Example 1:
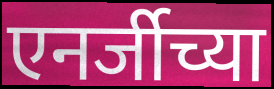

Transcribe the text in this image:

एनर्जीच्या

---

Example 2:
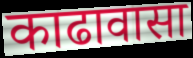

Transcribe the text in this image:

काढावासा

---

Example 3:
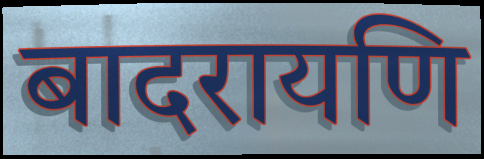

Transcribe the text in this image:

बादरायणि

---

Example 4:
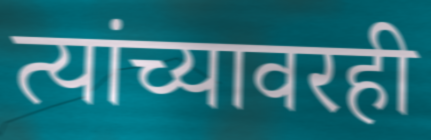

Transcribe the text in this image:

त्यांच्यावरही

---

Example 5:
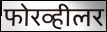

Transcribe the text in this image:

फोरव्हीलर